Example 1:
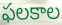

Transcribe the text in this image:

ఫలకాల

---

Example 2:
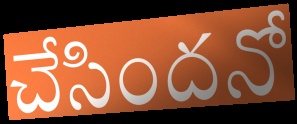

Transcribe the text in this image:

చేసిందనో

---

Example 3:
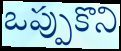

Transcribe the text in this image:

ఒప్పుకొని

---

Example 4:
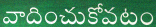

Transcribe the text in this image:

వాదించుకోవటం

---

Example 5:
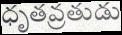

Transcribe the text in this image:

ధృతవ్రతుడు